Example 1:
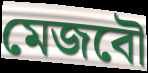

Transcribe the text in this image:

মেজবৌ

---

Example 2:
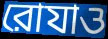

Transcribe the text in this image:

রোযাও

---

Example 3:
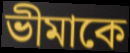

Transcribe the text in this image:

ভীমাকে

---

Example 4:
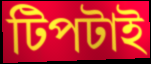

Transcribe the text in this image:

টিপটাই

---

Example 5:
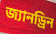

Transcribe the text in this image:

জ্যানড্রিন